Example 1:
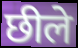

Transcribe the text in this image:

छीले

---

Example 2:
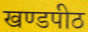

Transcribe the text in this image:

खण्डपीठ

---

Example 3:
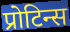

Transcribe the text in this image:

प्रोटिन्स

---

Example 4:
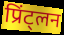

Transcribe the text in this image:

प्रिंट्लन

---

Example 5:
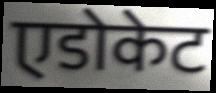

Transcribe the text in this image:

एडोकेट